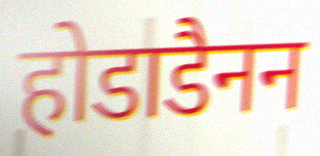
होडाडैनन